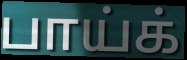
பாய்க்